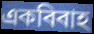
একবিবাহ